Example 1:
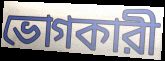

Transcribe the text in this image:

ভোগকারী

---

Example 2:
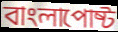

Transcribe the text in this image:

বাংলাপোষ্ট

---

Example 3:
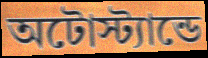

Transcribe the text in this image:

অটোস্ট্যান্ডে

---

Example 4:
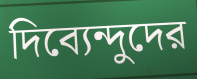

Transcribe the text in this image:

দিব্যেন্দুদের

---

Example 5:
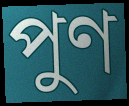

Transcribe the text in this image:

পুণ